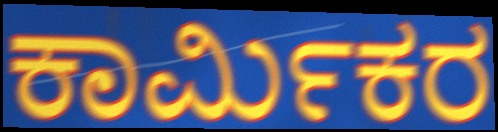
ಕಾರ್ಮಿಕರ